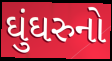
ઘુંઘરુનો